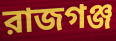
রাজগঞ্জ